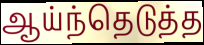
ஆய்ந்தெடுத்த